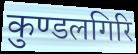
कुण्डलगिरि